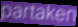
partaken